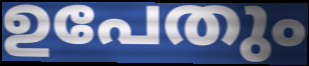
ഉപേതും